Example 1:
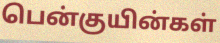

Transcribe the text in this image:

பென்குயின்கள்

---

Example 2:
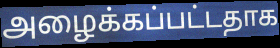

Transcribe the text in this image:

அழைக்கப்பட்டதாக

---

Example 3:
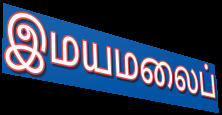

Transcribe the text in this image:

இமயமலைப்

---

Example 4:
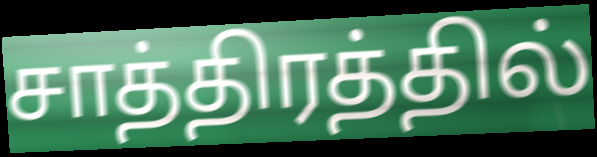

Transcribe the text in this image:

சாத்திரத்தில்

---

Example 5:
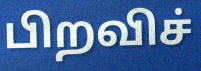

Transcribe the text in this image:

பிறவிச்